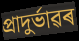
প্ৰাদুৰ্ভাৱৰ